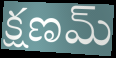
క్షణమ్